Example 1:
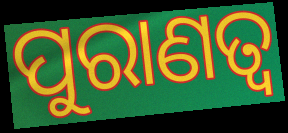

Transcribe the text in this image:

ପୁରାଣତ୍ୱ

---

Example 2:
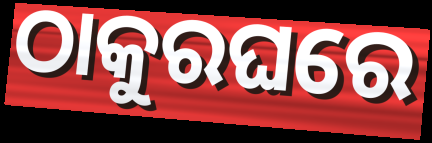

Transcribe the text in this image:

ଠାକୁରଘରେ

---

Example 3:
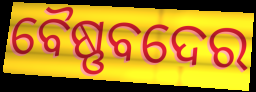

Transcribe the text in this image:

ବୈଷ୍ଣବଦେର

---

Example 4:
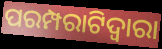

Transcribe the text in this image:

ପରମ୍ପରାଟିଦ୍ୱାରା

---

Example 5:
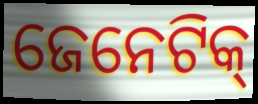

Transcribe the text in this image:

ଜେନେଟିକ୍